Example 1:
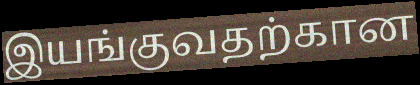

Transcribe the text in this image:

இயங்குவதற்கான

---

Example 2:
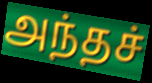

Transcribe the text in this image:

அந்தச்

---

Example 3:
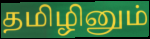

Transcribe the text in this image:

தமிழினும்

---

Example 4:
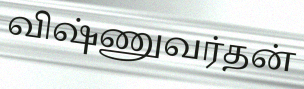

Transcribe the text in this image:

விஷ்ணுவர்தன்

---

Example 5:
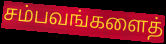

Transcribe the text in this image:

சம்பவங்களைத்